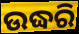
ଉଦ୍ଧରି